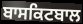
ਬਾਸਕਿਟਬਾਲ